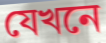
যেখনে